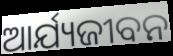
ଆର୍ଯ୍ୟଜୀବନ